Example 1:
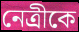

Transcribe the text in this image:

নেত্রীকে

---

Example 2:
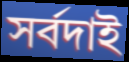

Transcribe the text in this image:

সর্বদাই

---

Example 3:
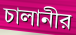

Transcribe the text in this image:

চালানীর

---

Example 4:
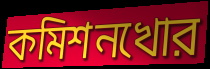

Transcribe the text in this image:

কমিশনখোর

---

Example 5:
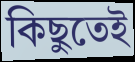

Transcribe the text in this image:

কিছুতেই